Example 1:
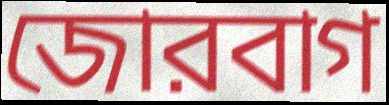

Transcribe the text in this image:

জোরবাগ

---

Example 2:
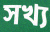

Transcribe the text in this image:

সখ্য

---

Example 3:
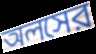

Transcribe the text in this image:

অলসের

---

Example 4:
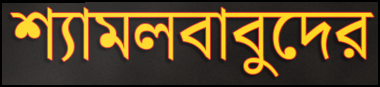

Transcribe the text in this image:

শ্যামলবাবুদের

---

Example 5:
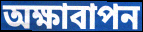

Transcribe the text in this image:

অক্ষাবাপন